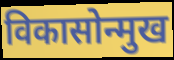
विकासोन्मुख